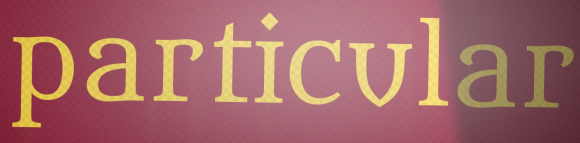
particular